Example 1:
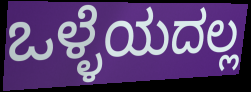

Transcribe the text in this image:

ಒಳ್ಳೆಯದಲ್ಲ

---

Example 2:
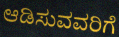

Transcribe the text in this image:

ಆಡಿಸುವವರಿಗೆ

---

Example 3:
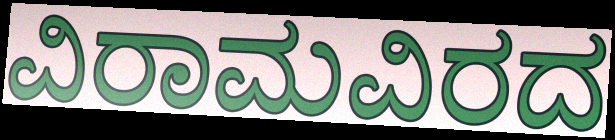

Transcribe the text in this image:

ವಿರಾಮವಿರದ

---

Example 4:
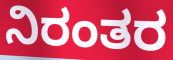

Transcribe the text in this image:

ನಿರಂತರ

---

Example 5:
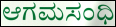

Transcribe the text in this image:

ಆಗಮಸಂಧಿ